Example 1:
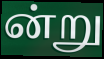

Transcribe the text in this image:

ன்று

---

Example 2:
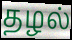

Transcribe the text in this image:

தழல்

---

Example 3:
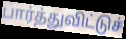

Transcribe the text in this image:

பார்த்துவிட்டுச்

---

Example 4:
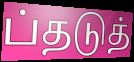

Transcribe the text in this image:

ப்தடுத்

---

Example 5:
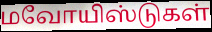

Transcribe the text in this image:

மவோயிஸ்டுகள்